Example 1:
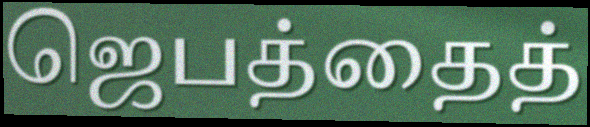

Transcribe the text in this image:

ஜெபத்தைத்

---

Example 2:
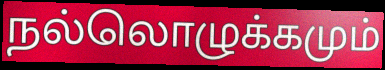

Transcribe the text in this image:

நல்லொழுக்கமும்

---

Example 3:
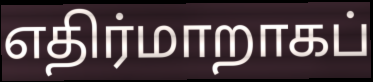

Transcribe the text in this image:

எதிர்மாறாகப்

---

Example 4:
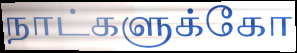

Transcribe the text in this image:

நாட்களுக்கோ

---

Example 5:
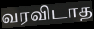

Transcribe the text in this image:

வரவிடாத